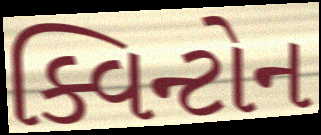
ક્વિન્ટોન